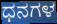
ಧನಗಳ